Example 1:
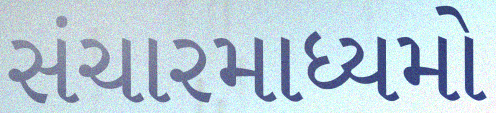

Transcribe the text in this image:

સંચારમાધ્યમો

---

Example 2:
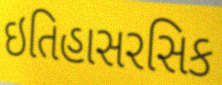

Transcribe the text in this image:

ઇતિહાસરસિક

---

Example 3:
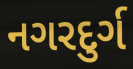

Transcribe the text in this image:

નગરદુર્ગ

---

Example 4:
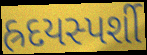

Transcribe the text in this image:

હ્રદયસ્પર્શી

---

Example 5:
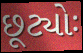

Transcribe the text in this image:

છૂટ્યોઃ